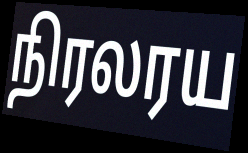
நிரலரய